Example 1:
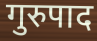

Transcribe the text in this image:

गुरुपाद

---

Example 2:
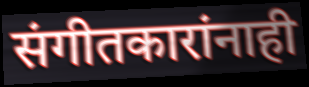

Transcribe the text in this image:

संगीतकारांनाही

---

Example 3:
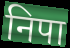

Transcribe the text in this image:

निपा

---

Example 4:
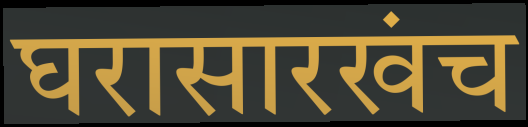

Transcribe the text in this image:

घरासारखंच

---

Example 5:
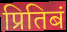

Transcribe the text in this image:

प्रितिबं